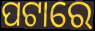
ପଟାରେ